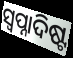
ସ୍ୱପ୍ନାଦିଷ୍ଟ